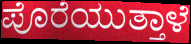
ಪೊರೆಯುತ್ತಾಳೆ